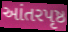
આંતરપૃષ્ઠ